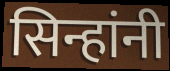
सिन्हांनी